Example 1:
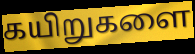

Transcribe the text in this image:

கயிறுகளை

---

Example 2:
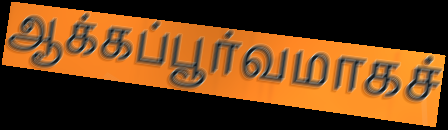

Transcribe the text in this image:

ஆக்கப்பூர்வமாகச்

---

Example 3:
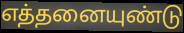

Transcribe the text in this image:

எத்தனையுண்டு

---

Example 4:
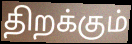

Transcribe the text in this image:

திறக்கும்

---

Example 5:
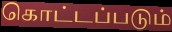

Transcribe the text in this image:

கொட்டப்படும்